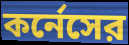
কর্নেসের